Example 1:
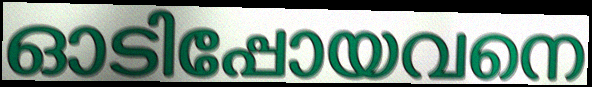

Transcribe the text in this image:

ഓടിപ്പോയവനെ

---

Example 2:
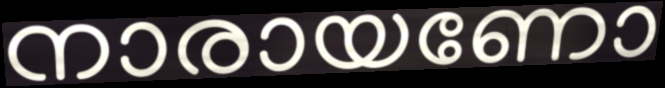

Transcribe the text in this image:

നാരായണോ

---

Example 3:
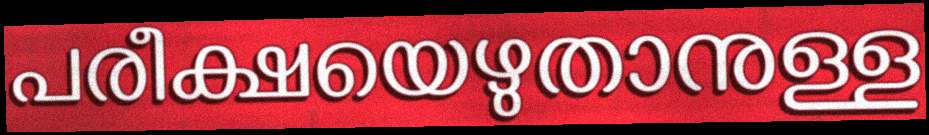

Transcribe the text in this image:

പരീക്ഷയെഴുതാനുള്ള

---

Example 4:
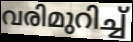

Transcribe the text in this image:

വരിമുറിച്ച്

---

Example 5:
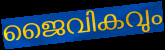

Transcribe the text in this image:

ജൈവികവും